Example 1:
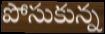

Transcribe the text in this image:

పోసుకున్న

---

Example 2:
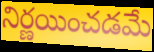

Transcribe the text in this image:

నిర్ణయించడమే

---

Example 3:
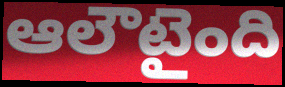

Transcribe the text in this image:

ఆలౌటైంది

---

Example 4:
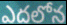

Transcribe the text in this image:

ఎదలోన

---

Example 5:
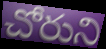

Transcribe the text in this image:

చోరుని